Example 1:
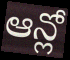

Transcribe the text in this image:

ఆన్లో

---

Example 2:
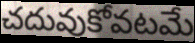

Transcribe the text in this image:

చదువుకోవటమే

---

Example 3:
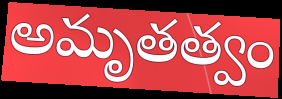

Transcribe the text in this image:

అమృతత్వం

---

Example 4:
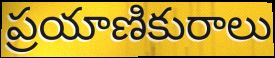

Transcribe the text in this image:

ప్రయాణికురాలు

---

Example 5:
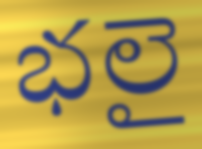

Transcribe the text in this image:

భలై